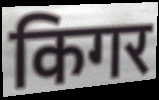
किगर